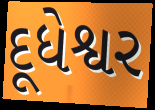
દૂધેશ્વર